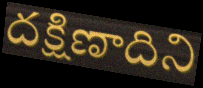
దక్షిణాదిని